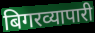
बिगरव्यापारी